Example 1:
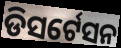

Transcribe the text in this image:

ଡିସର୍ଟେସନ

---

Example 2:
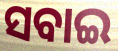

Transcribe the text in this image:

ସବାଇ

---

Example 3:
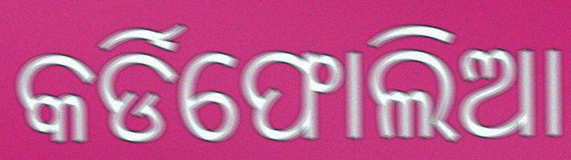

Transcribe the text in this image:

କର୍ଡିଫୋଲିଆ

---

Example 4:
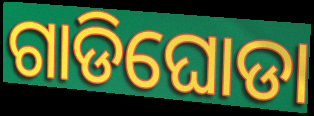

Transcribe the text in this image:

ଗାଡିଘୋଡା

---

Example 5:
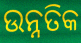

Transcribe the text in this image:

ଉନ୍ନତିକ